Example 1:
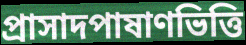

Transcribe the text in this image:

প্রাসাদপাষাণভিত্তি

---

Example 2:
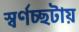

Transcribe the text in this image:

স্বর্ণচ্ছটায়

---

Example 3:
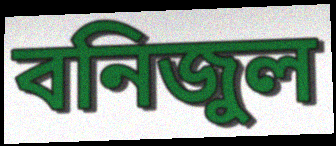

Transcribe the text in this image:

বনিজুল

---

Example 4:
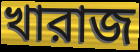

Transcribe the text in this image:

খারাজ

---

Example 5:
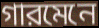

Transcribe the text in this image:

গারমেনে